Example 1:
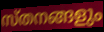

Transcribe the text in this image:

സ്തനങ്ങളും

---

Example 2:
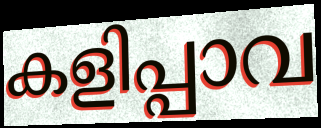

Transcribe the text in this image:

കളിപ്പാവ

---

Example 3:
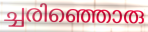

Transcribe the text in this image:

ച്ചരിഞ്ഞൊരു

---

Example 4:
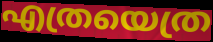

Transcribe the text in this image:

എത്രയെത്ര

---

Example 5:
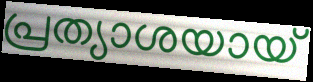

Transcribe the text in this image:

പ്രത്യാശയായ്